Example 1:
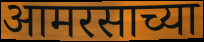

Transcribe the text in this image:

आमरसाच्या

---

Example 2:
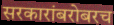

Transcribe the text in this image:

सरकारांबरोबरच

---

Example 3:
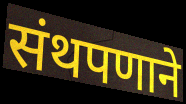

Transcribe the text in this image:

संथपणाने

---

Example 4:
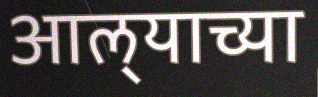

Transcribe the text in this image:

आल्याच्या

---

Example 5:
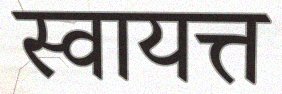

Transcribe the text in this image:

स्वायत्त